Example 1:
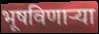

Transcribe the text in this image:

भूषविणाऱ्या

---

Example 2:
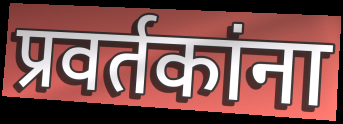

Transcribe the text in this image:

प्रवर्तकांना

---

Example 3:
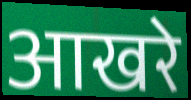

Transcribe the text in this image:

आखरे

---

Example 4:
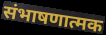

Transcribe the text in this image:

संभाषणात्मक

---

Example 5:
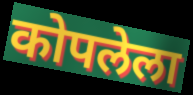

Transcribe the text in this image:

कोपलेला